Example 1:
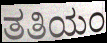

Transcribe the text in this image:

ತತಿಯಂ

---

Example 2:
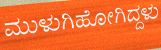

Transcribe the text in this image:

ಮುಳುಗಿಹೋಗಿದ್ದಳು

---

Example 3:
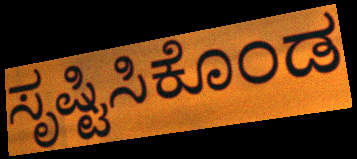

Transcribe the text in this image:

ಸೃಷ್ಟಿಸಿಕೊಂಡ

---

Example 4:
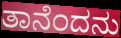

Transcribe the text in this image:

ತಾನೆಂದನು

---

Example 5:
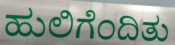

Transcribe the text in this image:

ಹುಲಿಗೆಂದಿತು